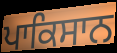
ਪਾਕਿਸਾਨ